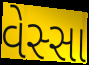
વેસ્સા